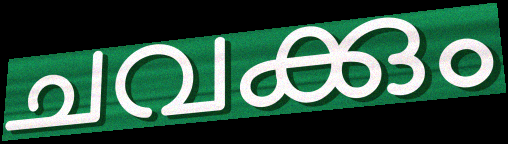
ചവക്കും